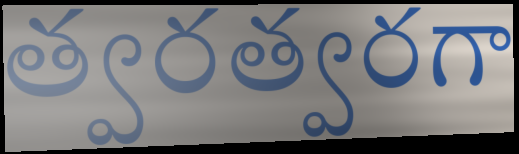
త్వరత్వరగా